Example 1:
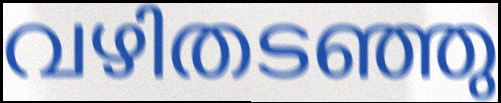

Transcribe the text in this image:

വഴിതടഞ്ഞു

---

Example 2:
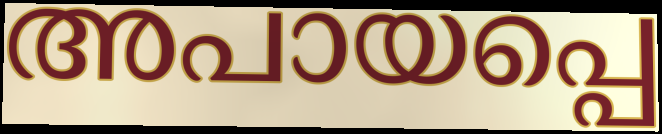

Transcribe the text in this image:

അപായപ്പെ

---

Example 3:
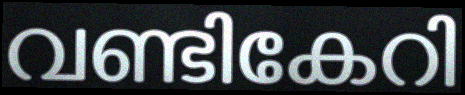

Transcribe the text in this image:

വണ്ടികേറി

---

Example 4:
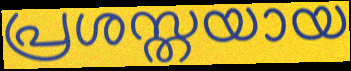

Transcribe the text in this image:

പ്രശസ്തയായ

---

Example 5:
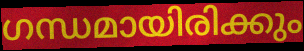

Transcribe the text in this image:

ഗന്ധമായിരിക്കും